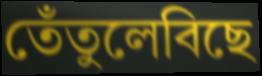
তেঁতুলেবিছে